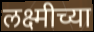
लक्ष्मीच्या